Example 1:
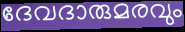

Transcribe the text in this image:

ദേവദാരുമരവും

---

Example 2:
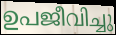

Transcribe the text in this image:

ഉപജീവിച്ചു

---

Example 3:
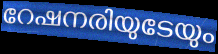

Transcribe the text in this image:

റേഷനരിയുടേയും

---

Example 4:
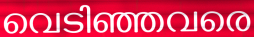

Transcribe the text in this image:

വെടിഞ്ഞവരെ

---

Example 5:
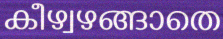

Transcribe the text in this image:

കീഴ്വഴങ്ങാതെ